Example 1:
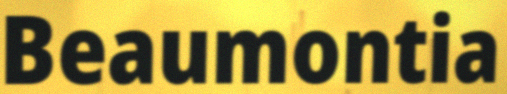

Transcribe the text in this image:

Beaumontia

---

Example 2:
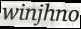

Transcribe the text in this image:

winjhno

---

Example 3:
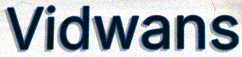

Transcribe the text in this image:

Vidwans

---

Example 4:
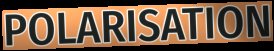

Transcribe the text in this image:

POLARISATION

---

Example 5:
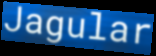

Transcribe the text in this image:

Jagular